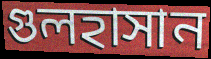
গুলহাসান